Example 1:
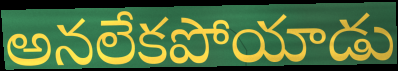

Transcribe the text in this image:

అనలేకపోయాడు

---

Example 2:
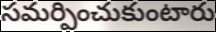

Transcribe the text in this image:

సమర్పించుకుంటారు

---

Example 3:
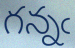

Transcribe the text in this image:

గన్నఁ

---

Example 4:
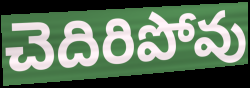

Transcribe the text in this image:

చెదిరిపోవు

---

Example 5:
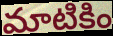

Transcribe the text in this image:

మాటికిం